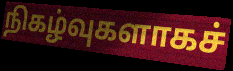
நிகழ்வுகளாகச்